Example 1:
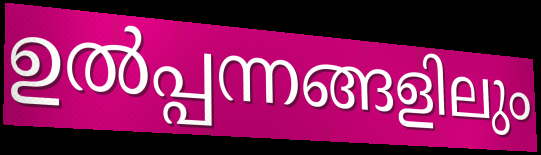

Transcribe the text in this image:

ഉൽപ്പന്നങ്ങളിലും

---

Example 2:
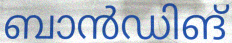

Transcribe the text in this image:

ബാൻഡിങ്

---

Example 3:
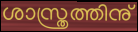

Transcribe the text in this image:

ശാസ്ത്രത്തിനു്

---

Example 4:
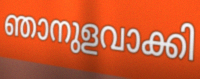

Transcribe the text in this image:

ഞാനുളവാക്കി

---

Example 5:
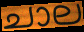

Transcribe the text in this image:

ചാല